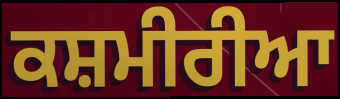
ਕਸ਼ਮੀਰੀਆ